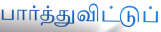
பார்த்துவிட்டுப்